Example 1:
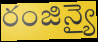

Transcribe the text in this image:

రంజిన్యై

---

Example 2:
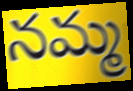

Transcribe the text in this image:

నమ్మ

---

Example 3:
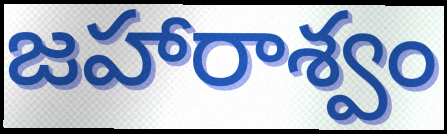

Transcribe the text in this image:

జహారాశ్వం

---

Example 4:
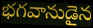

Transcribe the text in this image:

భగవానుడైన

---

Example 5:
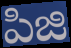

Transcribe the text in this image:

పిజి